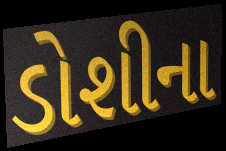
ડોશીના